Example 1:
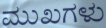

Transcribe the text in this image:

ಮುಖಗಳು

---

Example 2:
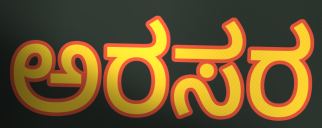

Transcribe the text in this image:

ಅರಸರ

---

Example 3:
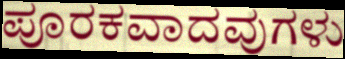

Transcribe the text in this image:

ಪೂರಕವಾದವುಗಳು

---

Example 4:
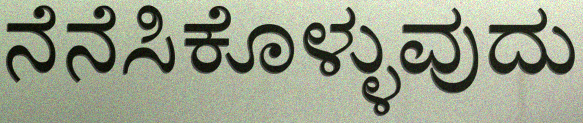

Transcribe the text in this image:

ನೆನೆಸಿಕೊಳ್ಳುವುದು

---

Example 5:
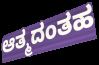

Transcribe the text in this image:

ಆತ್ಮದಂತಹ